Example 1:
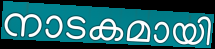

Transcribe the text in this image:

നാടകമായി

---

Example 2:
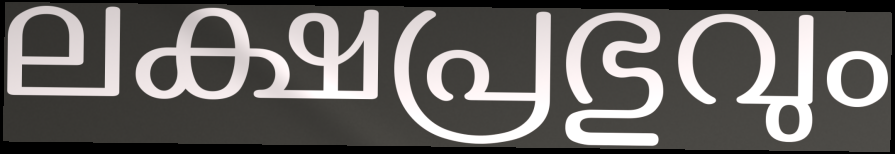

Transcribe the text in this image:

ലക്ഷപ്രഭുവും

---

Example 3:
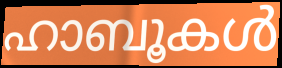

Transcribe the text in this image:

ഹാബൂകൾ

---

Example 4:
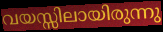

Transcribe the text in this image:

വയസ്സിലായിരുന്നു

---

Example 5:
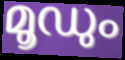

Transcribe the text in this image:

മൂഡും